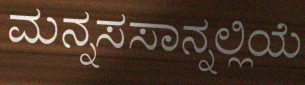
ಮನ್ನಸಸಾನ್ನಲ್ಲಿಯೆ